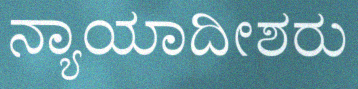
ನ್ಯಾಯಾದೀಶರು